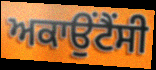
ਅਕਾਉਂਟੈਂਸੀ